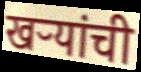
खऱ्यांची